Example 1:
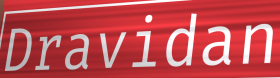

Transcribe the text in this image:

Dravidan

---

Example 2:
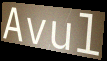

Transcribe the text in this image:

Avul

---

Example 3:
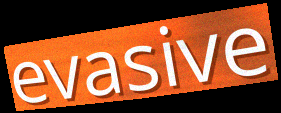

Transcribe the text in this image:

evasive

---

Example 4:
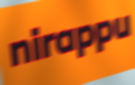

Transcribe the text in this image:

nirappu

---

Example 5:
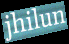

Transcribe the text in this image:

jhilun